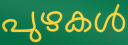
പുഴകൾ